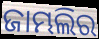
ଜାମ୍ଭଲିର